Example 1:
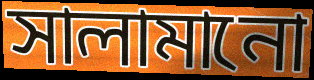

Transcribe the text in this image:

সালামানো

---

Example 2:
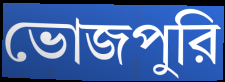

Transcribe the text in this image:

ভোজপুরি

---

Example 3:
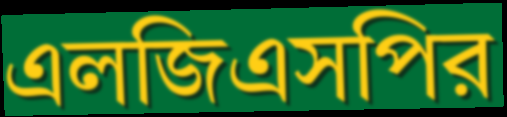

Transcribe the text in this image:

এলজিএসপির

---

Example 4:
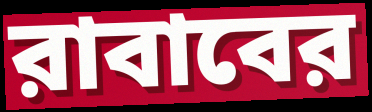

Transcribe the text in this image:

রাবাবের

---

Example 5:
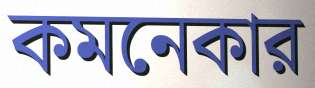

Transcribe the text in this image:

কমনেকার